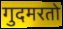
गुदमरतो